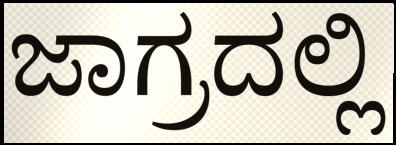
ಜಾಗ್ರದಲ್ಲಿ